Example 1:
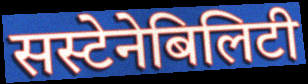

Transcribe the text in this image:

सस्टेनेबिलिटी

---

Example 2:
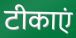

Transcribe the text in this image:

टीकाएं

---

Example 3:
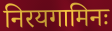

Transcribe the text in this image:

निरयगामिनः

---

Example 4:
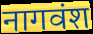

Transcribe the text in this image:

नागवंश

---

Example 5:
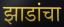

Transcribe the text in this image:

झाडांचा